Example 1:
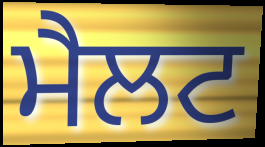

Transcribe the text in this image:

ਮੈਲਟ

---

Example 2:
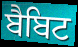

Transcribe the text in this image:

ਬੈਬਿਟ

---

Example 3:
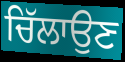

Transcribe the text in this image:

ਚਿੱਲਾਉਣ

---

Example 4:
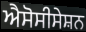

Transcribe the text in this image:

ਐਸੋਸੀਸੇਸ਼ਨ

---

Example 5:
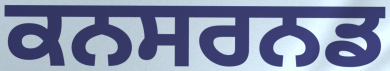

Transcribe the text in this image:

ਕਨਸਰਨਡ